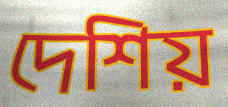
দেশিয়